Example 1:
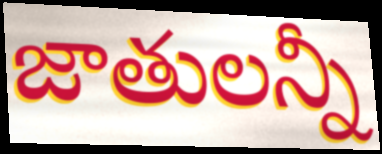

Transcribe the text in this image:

జాతులన్నీ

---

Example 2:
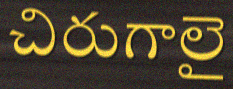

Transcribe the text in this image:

చిరుగాలై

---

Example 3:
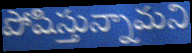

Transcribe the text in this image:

పోషిస్తున్నామని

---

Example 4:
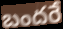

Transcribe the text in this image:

బందరే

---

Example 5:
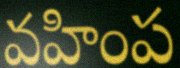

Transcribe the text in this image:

వహింప